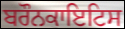
ਬਰੌਨਕਾਇਟਿਸ